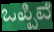
ಒಪ್ಪಿವೆ